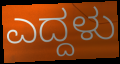
ಎದ್ದಳು